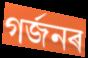
গৰ্জনৰ